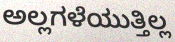
ಅಲ್ಲಗಳೆಯುತ್ತಿಲ್ಲ